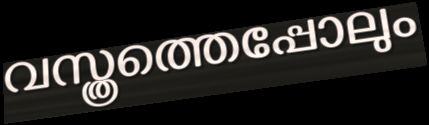
വസ്ത്രത്തെപ്പോലും